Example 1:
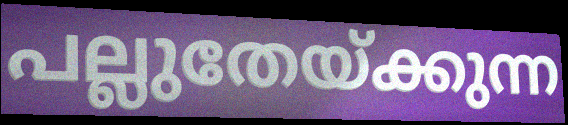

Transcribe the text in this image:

പല്ലുതേയ്ക്കുന്ന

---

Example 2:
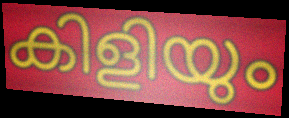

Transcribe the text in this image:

കിളിയും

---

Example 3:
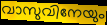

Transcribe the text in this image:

വാസുവിനേയും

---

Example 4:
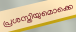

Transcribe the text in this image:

പ്രശസ്തിയുമൊക്കെ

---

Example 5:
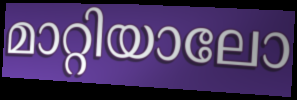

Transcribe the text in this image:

മാറ്റിയാലോ